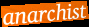
anarchist